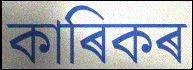
কাৰিকৰ